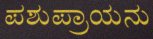
ಪಶುಪ್ರಾಯನು